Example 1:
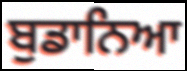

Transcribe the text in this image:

ਬੁਡਾਨਿਆ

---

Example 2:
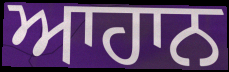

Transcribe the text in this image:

ਆਹਾਨ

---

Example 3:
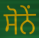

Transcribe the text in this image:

ਸੋਨੇਂ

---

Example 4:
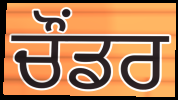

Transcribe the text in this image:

ਚੌਂਡਰ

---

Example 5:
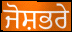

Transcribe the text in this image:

ਜੋਸ਼ਭਰੇ